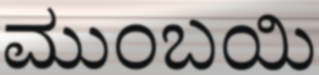
ಮುಂಬಯಿ